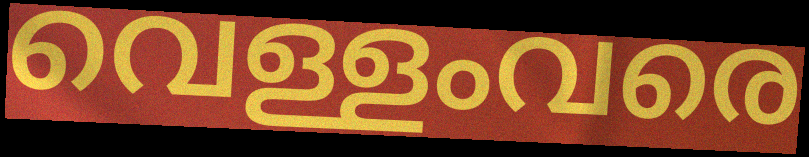
വെള്ളംവരെ